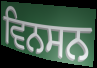
ਵਿਨਸਨ